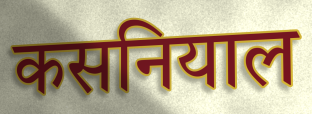
कसनियाल